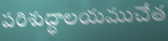
పరిశుద్ధాలయముచేత